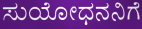
ಸುಯೋಧನನಿಗೆ